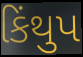
કિંથુપ